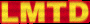
LMTD